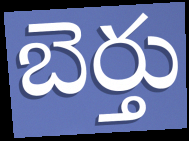
బెర్తు